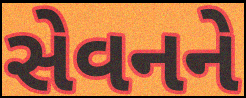
સેવનને